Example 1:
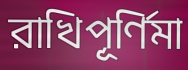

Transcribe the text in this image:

রাখিপূর্ণিমা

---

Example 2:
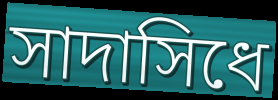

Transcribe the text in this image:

সাদাসিধে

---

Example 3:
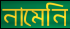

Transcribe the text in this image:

নামেনি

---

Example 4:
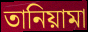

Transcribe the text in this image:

তানিয়ামা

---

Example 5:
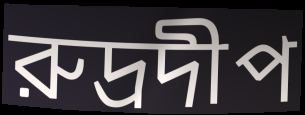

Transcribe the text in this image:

রুদ্রদীপ